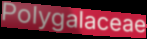
Polygalaceae